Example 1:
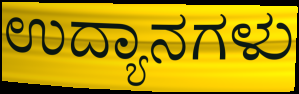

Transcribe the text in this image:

ಉದ್ಯಾನಗಳು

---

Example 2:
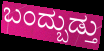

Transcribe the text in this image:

ಬಂದ್ಬುಡ್ತು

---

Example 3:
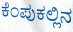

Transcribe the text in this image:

ಕೆಂಪುಕಲ್ಲಿನ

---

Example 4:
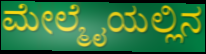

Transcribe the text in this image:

ಮೇಲ್ಮೈಯಲ್ಲಿನ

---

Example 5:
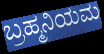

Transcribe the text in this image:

ಬ್ರಹ್ಮನಿಯಮ